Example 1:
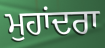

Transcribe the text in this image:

ਮੁਹਾਂਦਰਾ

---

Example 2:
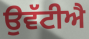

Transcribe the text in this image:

ਉਵੱਟੀਐ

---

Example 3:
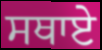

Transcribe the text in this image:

ਸਥਾਏ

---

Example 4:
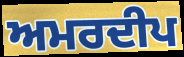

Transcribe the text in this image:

ਅਮਰਦੀਪ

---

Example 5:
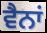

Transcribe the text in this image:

ਵੈਨਾਂ